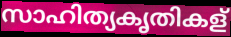
സാഹിത്യകൃതികള്